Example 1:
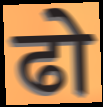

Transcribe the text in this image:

ढो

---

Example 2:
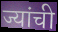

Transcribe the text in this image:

ज्यांची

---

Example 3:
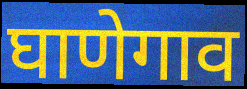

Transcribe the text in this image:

घाणेगाव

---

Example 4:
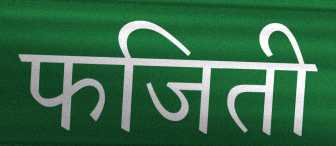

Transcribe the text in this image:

फजिती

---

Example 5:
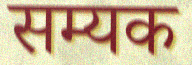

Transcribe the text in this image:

सम्यक